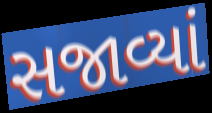
સજાવ્યાં